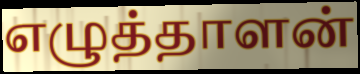
எழுத்தாளன்